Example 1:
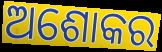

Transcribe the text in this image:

ଅଶୋକର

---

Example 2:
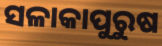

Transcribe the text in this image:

ସଳାକାପୁରୁଷ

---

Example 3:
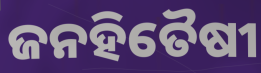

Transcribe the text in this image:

ଜନହିତୈଷୀ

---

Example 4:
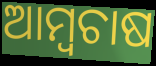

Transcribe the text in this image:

ଆମ୍ୱଚାଷ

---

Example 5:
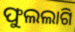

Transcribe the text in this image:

ଫୁଲଲାଗି